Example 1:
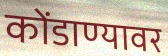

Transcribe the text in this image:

कोंडाण्यावर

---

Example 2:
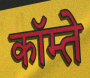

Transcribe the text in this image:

कॉम्ते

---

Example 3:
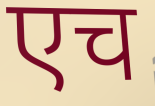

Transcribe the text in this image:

एच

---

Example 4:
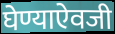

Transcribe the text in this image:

घेण्याऐवजी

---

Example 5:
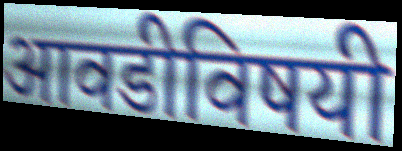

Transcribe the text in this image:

आवडीविषयी